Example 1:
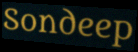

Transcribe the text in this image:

Sondeep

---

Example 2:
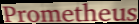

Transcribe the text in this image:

Prometheus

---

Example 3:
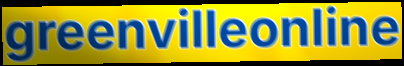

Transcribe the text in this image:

greenvilleonline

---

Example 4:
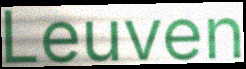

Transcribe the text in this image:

Leuven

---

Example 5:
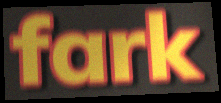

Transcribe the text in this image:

fark